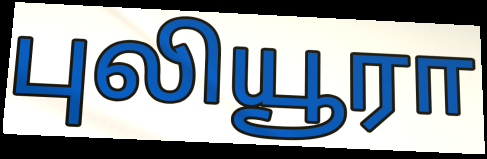
புலியூரா